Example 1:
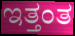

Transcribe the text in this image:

ಇತ್ತಂತ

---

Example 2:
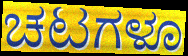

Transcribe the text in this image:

ಚಟಗಳೂ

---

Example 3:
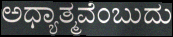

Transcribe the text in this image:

ಅಧ್ಯಾತ್ಮವೆಂಬುದು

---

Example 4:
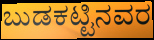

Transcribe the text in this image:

ಬುಡಕಟ್ಟಿನವರ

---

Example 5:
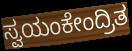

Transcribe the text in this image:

ಸ್ವಯಂಕೇಂದ್ರಿತ